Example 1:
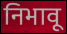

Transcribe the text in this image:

निभावू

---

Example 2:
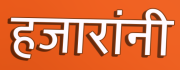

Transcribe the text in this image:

हजारांनी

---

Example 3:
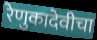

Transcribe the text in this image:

रेणुकादेवीचा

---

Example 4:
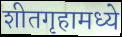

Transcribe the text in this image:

शीतगृहामध्ये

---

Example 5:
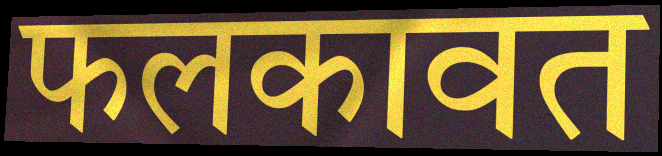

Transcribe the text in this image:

फलकावत